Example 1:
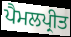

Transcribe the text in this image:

ਪੈਮਲਪ੍ਰੀਤ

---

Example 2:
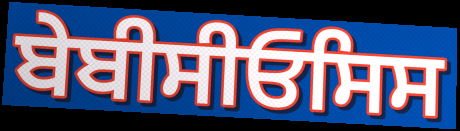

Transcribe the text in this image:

ਬੇਬੀਸੀਓਸਿਸ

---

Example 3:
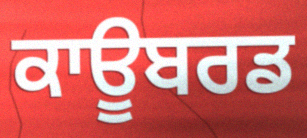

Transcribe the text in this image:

ਕਾਊਬਰਡ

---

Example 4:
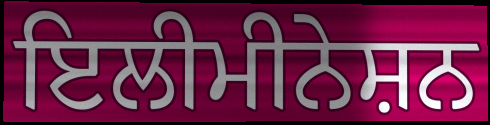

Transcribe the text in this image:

ਇਲੀਮੀਨੇਸ਼ਨ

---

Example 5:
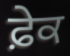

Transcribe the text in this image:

ਫ਼ੇਕ